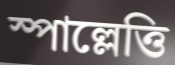
স্পাল্লেত্তি